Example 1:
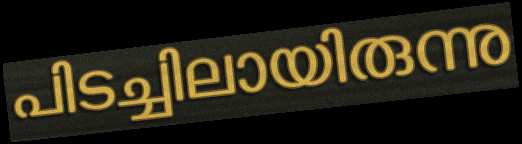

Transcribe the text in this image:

പിടച്ചിലായിരുന്നു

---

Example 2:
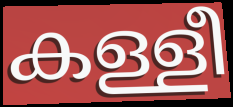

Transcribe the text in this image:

കള്ളീ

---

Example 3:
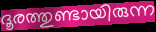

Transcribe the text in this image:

ദൂരത്തുണ്ടായിരുന്ന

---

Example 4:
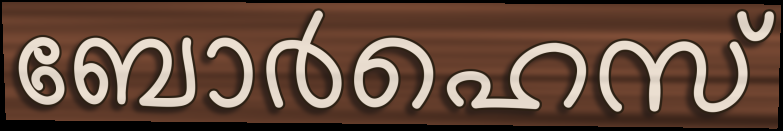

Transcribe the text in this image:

ബോർഹെസ്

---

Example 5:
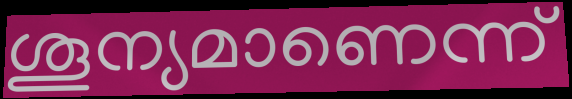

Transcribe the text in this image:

ശൂന്യമാണെന്ന്